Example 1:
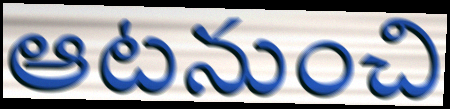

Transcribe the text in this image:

ఆటనుంచి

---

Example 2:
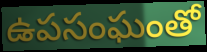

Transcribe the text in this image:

ఉపసంఘంతో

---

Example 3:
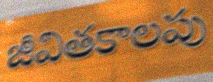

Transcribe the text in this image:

జీవితకాలపు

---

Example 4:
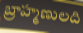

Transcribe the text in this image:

బ్రాహ్మణులది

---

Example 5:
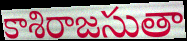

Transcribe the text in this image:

కాశిరాజసుతా